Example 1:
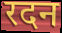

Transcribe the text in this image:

रदन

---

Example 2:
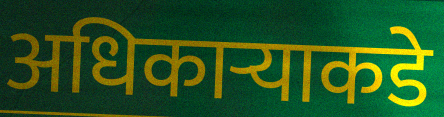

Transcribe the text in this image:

अधिकार्‍याकडे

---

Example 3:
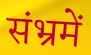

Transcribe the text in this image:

संभ्रमें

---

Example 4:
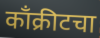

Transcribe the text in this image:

काँक्रीटचा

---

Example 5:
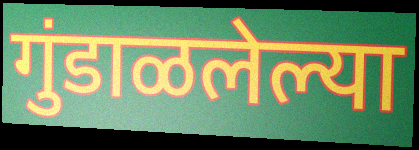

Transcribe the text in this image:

गुंडाळलेल्या